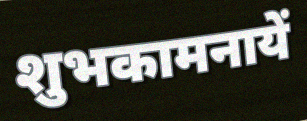
शुभकामनायें